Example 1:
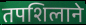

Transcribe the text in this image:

तपशिलाने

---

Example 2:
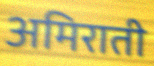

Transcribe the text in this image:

अमिराती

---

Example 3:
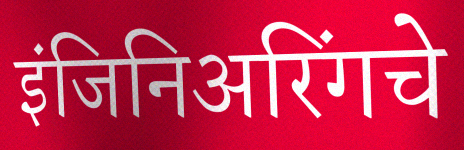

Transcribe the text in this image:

इंजिनिअरिंगचे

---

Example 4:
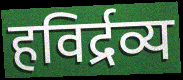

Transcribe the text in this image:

हविर्द्रव्य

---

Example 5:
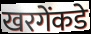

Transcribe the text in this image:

खरगेंकडे